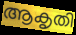
ആകൃതി